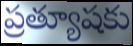
ప్రత్యూషకు